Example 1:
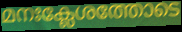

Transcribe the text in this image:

മനഃക്ലേശത്തോടെ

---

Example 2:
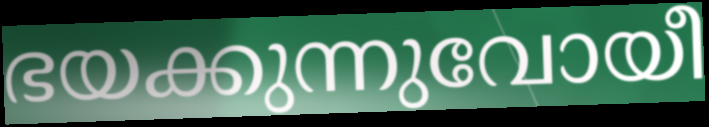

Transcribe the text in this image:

ഭയക്കുന്നുവോയീ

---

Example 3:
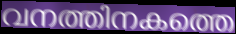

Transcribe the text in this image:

വനത്തിനകത്തെ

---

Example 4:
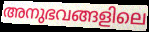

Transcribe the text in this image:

അനുഭവങ്ങളിലെ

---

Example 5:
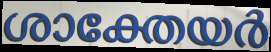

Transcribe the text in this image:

ശാക്തേയർ